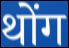
थोंग